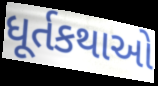
ધૂર્તકથાઓ